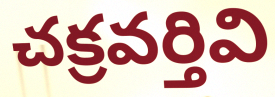
చక్రవర్తివి